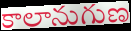
కాలానుగుణ